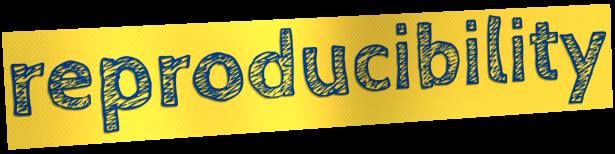
reproducibility